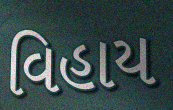
વિહાય